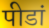
पीडां